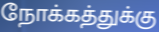
நோக்கத்துக்கு